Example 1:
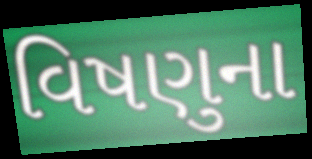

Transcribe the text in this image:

વિષણુના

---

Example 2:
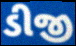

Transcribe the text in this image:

ડીજી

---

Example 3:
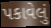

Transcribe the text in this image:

પકાવેલું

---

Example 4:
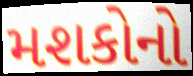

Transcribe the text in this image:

મશકોનો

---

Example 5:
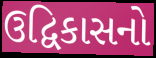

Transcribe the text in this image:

ઉદ્વિકાસનો